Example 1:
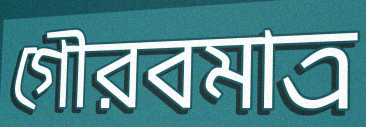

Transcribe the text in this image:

গৌরবমাত্র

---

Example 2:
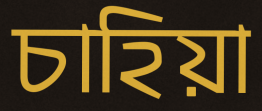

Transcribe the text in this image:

চাহিয়া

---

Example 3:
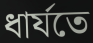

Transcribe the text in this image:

ধার্যতে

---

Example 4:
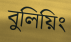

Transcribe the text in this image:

বুলিয়িং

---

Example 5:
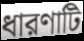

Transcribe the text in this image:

ধারণাটি